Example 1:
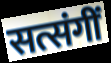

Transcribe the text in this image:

सत्संगीं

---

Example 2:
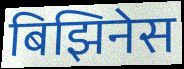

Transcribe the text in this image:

बिझिनेस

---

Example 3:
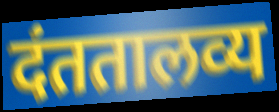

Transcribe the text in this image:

दंततालव्य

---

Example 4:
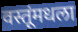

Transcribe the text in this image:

वस्तूंमधला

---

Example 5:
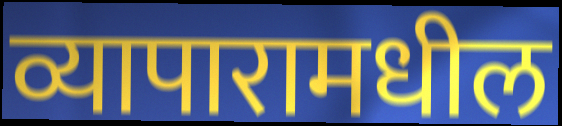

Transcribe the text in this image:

व्यापारामधील